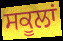
ਸਕੂਲਾਂ